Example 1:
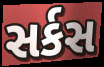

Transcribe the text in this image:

સર્કસ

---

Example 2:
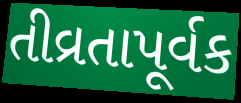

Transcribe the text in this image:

તીવ્રતાપૂર્વક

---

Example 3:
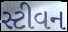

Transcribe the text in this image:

સ્ટીવન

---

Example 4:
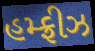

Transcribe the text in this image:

હમ્ફ્રીઝ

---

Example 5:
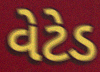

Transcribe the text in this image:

વેટેડ